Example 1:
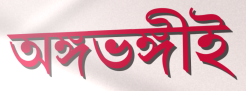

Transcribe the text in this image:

অঙ্গভঙ্গীই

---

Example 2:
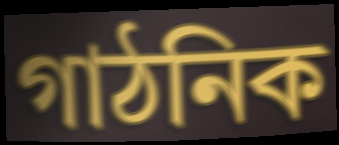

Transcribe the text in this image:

গাঠনিক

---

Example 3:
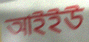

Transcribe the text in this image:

আইইউ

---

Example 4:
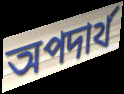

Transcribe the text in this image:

অপদার্থ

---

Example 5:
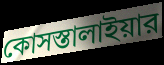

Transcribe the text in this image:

কোসস্তালাইয়ার